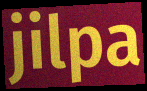
jilpa